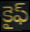
కైఫ్